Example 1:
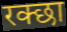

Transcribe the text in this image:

रक्छा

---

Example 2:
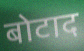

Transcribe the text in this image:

बोटाद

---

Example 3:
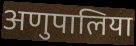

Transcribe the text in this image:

अणुपालिया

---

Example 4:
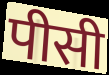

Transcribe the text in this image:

पीसी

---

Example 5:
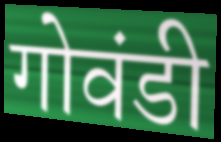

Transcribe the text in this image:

गोवंडी